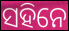
ସହିନେ